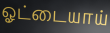
ஓட்டையாய்